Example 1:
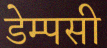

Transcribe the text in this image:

डेम्पसी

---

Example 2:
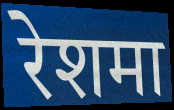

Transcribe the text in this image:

रेशमा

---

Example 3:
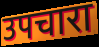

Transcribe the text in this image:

उपचारा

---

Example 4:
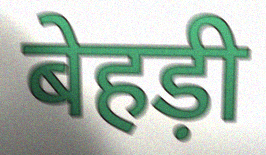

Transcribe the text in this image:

बेहड़ी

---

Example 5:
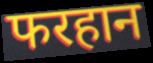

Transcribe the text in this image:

फरहान